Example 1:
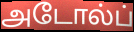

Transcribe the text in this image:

அடோல்ப்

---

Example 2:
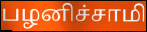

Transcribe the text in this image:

பழனிச்சாமி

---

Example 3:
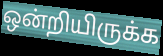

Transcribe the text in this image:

ஒன்றியிருக்க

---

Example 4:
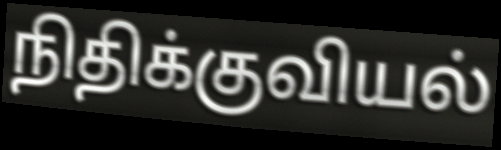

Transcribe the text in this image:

நிதிக்குவியல்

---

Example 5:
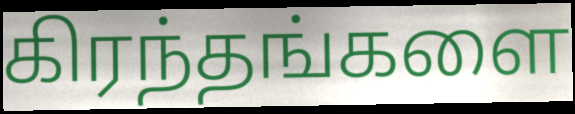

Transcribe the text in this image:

கிரந்தங்களை